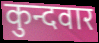
कुन्दवार